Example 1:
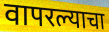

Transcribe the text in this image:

वापरल्याचा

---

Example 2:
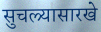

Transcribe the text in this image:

सुचल्यासारखे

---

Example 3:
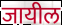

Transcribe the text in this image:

जायील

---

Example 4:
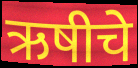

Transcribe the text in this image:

ऋषीचे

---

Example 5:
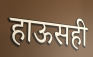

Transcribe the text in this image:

हाऊसही